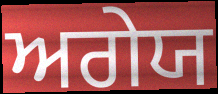
ਅਗੇਯ